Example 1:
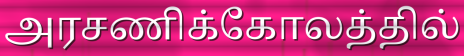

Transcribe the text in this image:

அரசணிக்கோலத்தில்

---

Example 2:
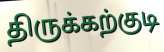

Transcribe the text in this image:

திருக்கற்குடி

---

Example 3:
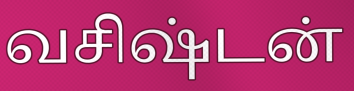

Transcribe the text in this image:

வசிஷ்டன்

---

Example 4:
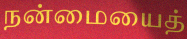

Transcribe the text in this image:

நன்மையைத்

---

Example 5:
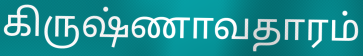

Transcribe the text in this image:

கிருஷ்ணாவதாரம்